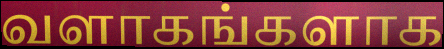
வளாகங்களாக